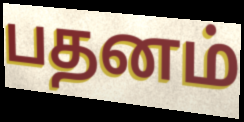
பதனம்